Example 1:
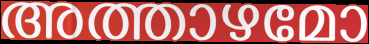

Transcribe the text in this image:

അത്താഴമോ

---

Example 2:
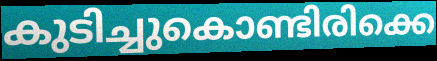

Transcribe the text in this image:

കുടിച്ചുകൊണ്ടിരിക്കെ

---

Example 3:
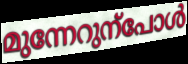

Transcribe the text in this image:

മുന്നേറുന്പോൾ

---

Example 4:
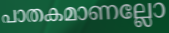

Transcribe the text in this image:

പാതകമാണല്ലോ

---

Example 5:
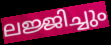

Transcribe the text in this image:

ലജ്ജിച്ചും